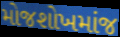
મોજશોખમાંજ